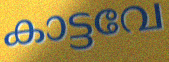
കാട്ടവേ